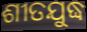
ଶୀତଯୁଦ୍ଧ